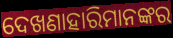
ଦେଖଣାହାରିମାନଙ୍କର